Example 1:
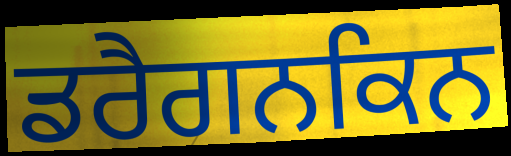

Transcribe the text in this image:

ਡਰੈਗਨਕਿਨ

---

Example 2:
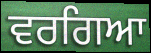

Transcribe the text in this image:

ਵਰਗਿਆ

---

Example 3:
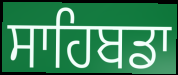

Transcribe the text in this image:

ਸਾਹਿਬਡਾ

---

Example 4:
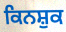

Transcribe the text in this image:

ਕਿਨਸ਼ੁਕ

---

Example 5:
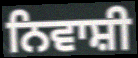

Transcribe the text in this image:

ਨਿਵਾਸ਼ੀ